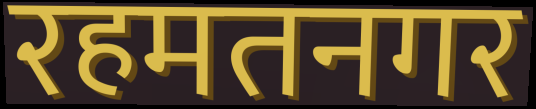
रहमतनगर